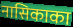
नासिकाका